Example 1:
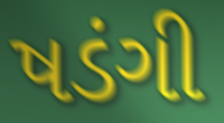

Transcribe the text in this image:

ષડંગી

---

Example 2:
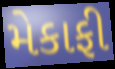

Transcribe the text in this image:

મેકાફી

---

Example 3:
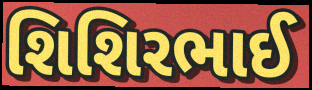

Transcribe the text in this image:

શિશિરભાઈ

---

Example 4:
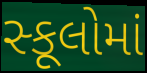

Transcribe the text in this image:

સ્કૂલોમાં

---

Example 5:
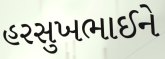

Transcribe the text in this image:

હરસુખભાઈને